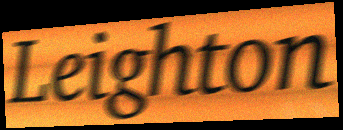
Leighton